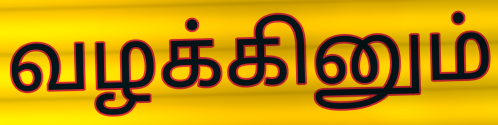
வழக்கினும்